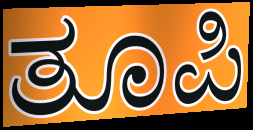
ತೂಪಿ